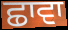
ਛਾਵਾ